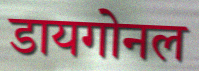
डायगोनल